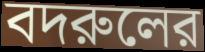
বদরুলের